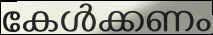
കേൾക്കണം